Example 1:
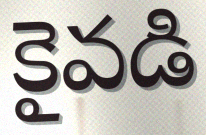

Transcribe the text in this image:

కైవడి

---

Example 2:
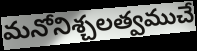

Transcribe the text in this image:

మనోనిశ్చలత్వముచే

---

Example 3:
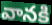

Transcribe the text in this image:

వానకి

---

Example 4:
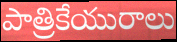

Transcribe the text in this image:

పాత్రికేయురాలు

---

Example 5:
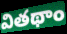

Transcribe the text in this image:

వితథాం